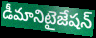
డీమానిటైజేషన్